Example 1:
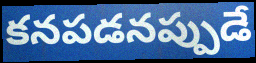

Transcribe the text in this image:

కనపడనప్పుడే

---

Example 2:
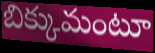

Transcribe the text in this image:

బిక్కుమంటూ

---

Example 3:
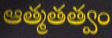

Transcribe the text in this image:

ఆత్మతత్వం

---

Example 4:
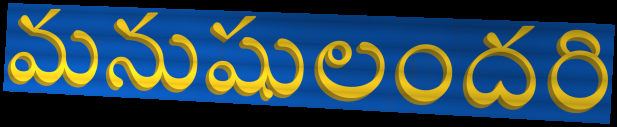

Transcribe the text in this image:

మనుషులందరి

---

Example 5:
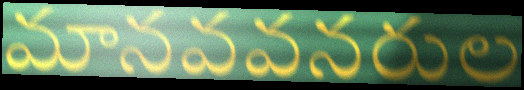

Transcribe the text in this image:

మానవవనరుల